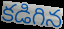
కడిగిన